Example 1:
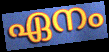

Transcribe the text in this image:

ഏനം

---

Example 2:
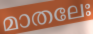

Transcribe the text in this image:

മാതലേഃ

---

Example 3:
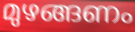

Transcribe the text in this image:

മുഴങ്ങണം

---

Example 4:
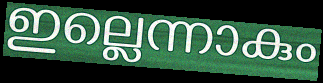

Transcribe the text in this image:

ഇല്ലെന്നാകും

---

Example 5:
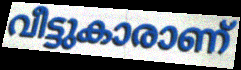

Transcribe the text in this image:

വീട്ടുകാരാണ്